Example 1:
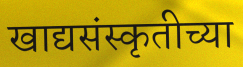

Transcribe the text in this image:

खाद्यसंस्कृतीच्या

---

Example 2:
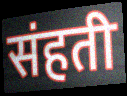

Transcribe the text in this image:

संहती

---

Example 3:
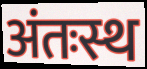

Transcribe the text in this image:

अंतःस्थ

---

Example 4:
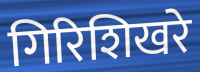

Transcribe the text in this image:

गिरिशिखरे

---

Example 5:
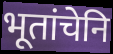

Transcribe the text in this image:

भूतांचेनि